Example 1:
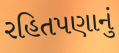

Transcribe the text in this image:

રહિતપણાનું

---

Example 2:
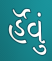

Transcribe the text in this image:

ર્હૅવું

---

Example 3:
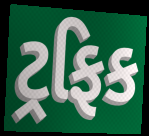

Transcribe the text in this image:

ટ્રફિક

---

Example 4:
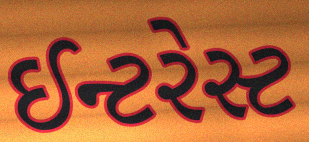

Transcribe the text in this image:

ઈન્ટરેસ્ટ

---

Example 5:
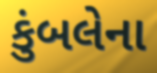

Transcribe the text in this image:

કુંબલેના